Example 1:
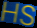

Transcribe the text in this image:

HS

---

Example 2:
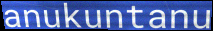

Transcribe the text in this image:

anukuntanu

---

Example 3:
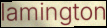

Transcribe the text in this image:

lamington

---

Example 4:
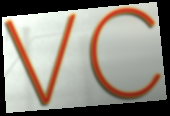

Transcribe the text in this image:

vc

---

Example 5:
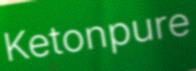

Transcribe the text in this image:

Ketonpure